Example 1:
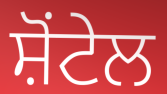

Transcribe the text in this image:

ਸ਼ੋਂਟੇਲ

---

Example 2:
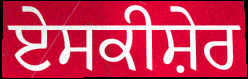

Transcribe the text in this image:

ਏਸਕੀਸ਼ੇਰ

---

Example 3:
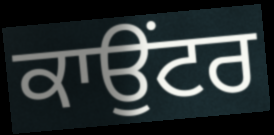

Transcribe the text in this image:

ਕਾਉਂਟਰ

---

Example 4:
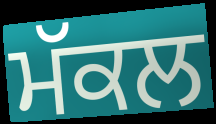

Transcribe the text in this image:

ਮੱਕਲ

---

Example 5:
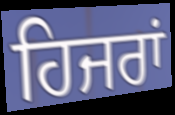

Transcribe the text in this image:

ਹਿਜਰਾਂ